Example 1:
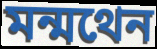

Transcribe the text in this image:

মন্মথেন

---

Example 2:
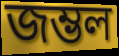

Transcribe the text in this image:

জম্ভল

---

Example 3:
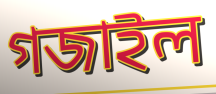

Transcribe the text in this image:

গজাইল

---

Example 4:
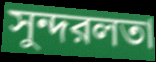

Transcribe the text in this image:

সুন্দরলতা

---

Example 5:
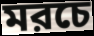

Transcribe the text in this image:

মরচে